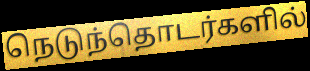
நெடுந்தொடர்களில்